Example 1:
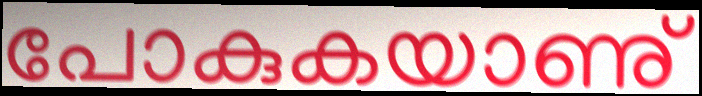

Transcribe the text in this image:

പോകുകയാണു്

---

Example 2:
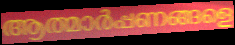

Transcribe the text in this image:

ആത്മാർപ്പണങ്ങളെ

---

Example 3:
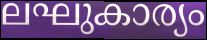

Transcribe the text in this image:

ലഘുകാര്യം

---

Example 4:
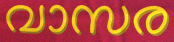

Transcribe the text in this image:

വാസര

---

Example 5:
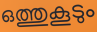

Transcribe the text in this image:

ഒത്തുകൂടും